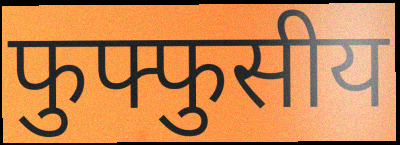
फुफ्फुसीय